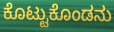
ಕೊಟ್ಟುಕೊಂಡನು